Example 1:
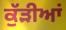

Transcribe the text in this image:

ਕੁੱੜੀਆਂ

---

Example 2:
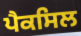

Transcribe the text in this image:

ਪੈਕਸਿਲ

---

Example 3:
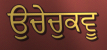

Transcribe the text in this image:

ਉਚੇਚੁਕਵੂ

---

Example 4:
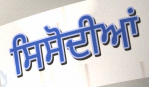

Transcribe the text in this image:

ਸਿਸੋਦੀਆਂ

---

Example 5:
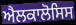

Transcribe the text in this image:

ਐਲਕਾਲੋਸਿਸ